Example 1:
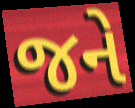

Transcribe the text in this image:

જને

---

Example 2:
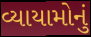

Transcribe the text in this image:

વ્યાયામોનું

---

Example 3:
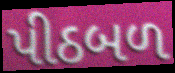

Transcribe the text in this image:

પીઠબળ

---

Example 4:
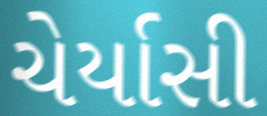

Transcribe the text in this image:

ચેર્યાસી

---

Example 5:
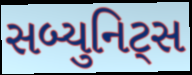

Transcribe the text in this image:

સબ્યુનિટ્સ